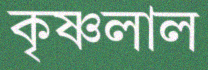
কৃষ্ণলাল